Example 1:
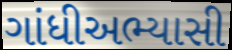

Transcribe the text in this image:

ગાંધીઅભ્યાસી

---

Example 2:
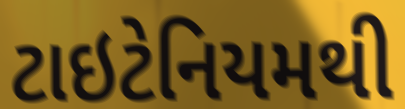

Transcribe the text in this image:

ટાઇટેનિયમથી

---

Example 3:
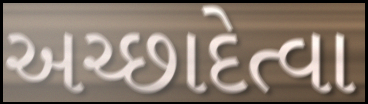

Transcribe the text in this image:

અચ્છાદેત્વા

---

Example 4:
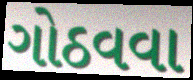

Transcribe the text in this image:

ગોઠવવા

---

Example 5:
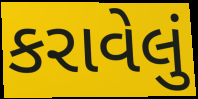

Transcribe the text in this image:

કરાવેલું